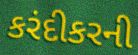
કરંદીકરની